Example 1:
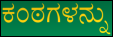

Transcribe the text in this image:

ಕಂಠಗಳನ್ನು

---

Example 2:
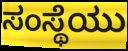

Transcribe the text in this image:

ಸಂಸ್ಥೆಯು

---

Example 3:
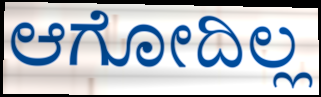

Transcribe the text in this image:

ಆಗೋದಿಲ್ಲ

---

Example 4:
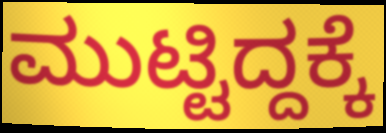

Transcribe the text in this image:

ಮುಟ್ಟಿದ್ದಕ್ಕೆ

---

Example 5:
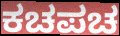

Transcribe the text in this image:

ಕಚಪಚ